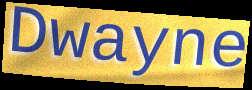
Dwayne